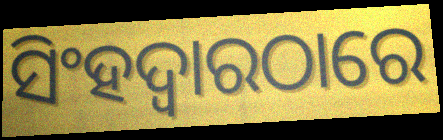
ସିଂହଦ୍ୱାରଠାରେ